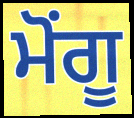
ਮੋਂਗੂ